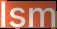
Ism